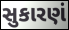
સુકારણં